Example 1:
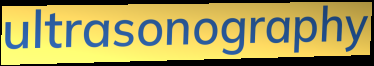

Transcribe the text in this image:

ultrasonography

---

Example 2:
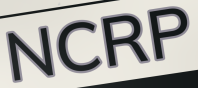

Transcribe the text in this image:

NCRP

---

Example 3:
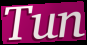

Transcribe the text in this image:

Tun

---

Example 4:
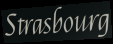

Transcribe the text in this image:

Strasbourg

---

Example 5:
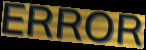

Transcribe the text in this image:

ERROR